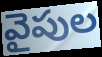
వైపుల